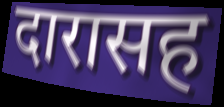
दारासह